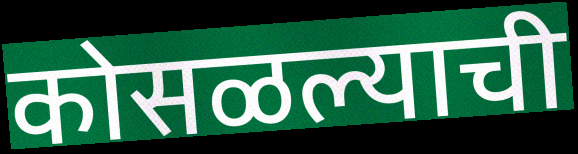
कोसळल्याची